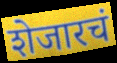
शेजारचं